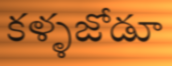
కళ్ళజోడూ